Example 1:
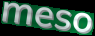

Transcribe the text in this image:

meso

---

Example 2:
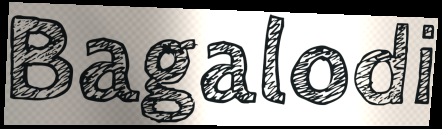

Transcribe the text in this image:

Bagalodi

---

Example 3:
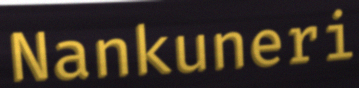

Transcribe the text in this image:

Nankuneri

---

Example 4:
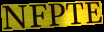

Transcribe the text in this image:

NFPTE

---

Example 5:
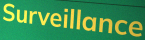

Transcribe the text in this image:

Surveillance